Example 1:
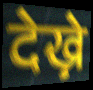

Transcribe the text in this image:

देख्ने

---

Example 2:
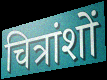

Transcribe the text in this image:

चित्रांशों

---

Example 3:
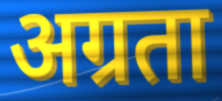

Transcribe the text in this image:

अग्रता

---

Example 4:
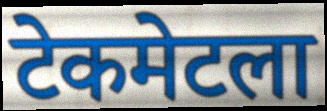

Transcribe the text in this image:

टेकमेटला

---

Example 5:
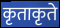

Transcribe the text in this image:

कृताकृते